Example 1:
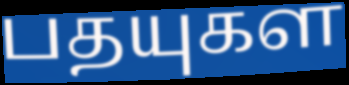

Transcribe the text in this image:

பதயுகள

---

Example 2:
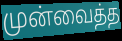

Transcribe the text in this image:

முன்வைத்த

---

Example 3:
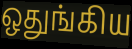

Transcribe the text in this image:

ஒதுங்கிய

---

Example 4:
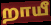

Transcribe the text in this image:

றாயீ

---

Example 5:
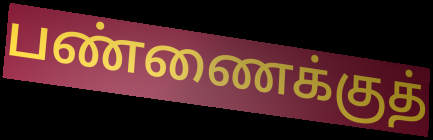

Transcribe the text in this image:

பண்ணைக்குத்